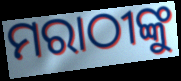
ମରାଠୀଙ୍କୁ